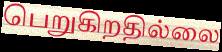
பெறுகிறதில்லை